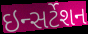
ઇન્સર્ટેશન